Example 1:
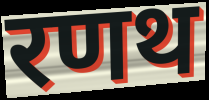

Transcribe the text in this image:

रणथ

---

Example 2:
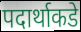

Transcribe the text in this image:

पदार्थाकडे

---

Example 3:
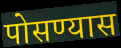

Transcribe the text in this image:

पोसण्यास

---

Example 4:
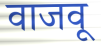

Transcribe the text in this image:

वाजवू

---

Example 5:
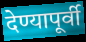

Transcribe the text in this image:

देण्यापूर्वी